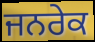
ਜਨਰੇਕ